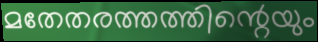
മതേതരത്തത്തിന്റെയും